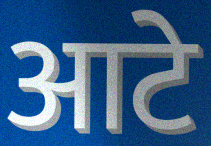
आटे